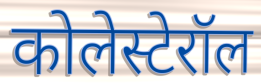
कोलेस्टेरॉल